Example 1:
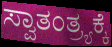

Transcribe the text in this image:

ಸ್ವಾತಂತ್ರ್ಯಕ್ಕೆ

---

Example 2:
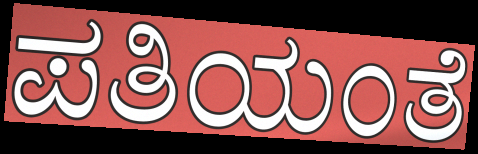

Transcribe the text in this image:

ಪತಿಯಂತೆ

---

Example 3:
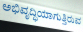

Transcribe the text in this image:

ಅಭಿವೃದ್ಧಿಯಾಗುತ್ತಿರುವ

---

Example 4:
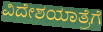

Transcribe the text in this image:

ವಿದೇಶಯಾತ್ರೆಗೆ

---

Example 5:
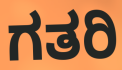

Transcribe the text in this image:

ಗತರಿ